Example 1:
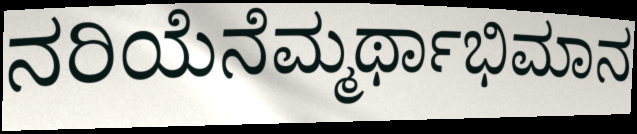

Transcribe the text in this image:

ನರಿಯೆನೆಮ್ಮರ್ಥಾಭಿಮಾನ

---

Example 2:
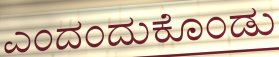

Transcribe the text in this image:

ಎಂದಂದುಕೊಂಡು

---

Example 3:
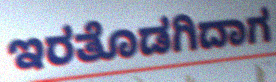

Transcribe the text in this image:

ಇರತೊಡಗಿದಾಗ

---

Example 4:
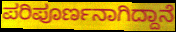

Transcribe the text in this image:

ಪರಿಪೂರ್ಣನಾಗಿದ್ದಾನೆ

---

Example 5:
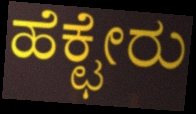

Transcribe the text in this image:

ಹೆಕ್ಟೇರು